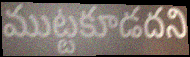
ముట్టకూడదని